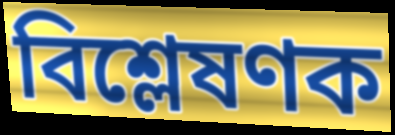
বিশ্লেষণক